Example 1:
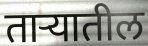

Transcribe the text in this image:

ताऱ्यातील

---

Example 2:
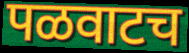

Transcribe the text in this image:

पळवाटच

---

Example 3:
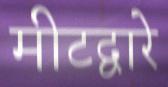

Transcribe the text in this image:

मीटद्वारे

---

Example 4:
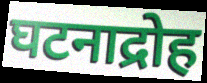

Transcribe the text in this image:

घटनाद्रोह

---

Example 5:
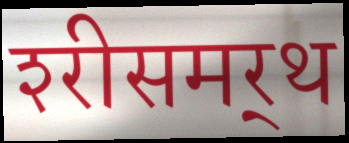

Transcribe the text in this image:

श्रीसमर्थ